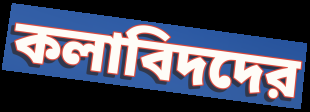
কলাবিদদের